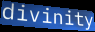
divinity